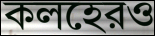
কলহেরও